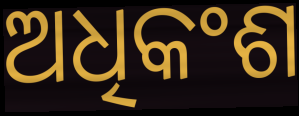
ଅଧିକଂଶ